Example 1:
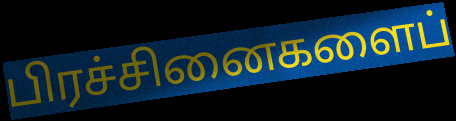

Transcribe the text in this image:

பிரச்சினைகளைப்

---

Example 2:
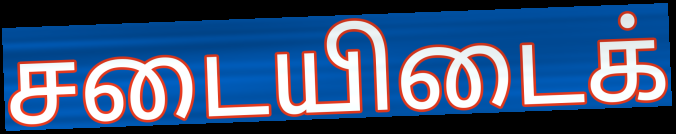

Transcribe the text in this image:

சடையிடைக்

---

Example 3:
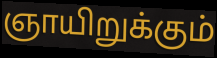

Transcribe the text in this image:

ஞாயிறுக்கும்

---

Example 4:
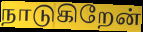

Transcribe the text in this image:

நாடுகிறேன்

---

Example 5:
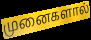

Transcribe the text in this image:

முனைகளால்